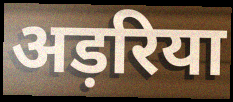
अड़रिया